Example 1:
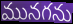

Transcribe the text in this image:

మునగను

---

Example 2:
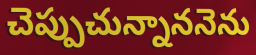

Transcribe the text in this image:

చెప్పుచున్నాననెను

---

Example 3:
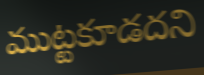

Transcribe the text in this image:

ముట్టకూడదని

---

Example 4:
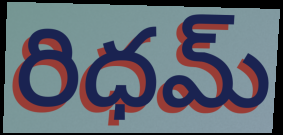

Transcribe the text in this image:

రిధమ్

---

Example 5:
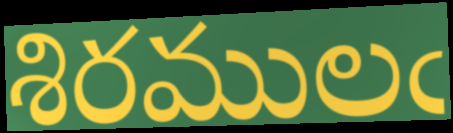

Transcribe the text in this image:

శిరములఁ